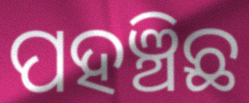
ପହଞ୍ଚିଛ